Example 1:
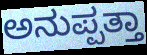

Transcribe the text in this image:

ಅನುಪ್ಪತ್ತಾ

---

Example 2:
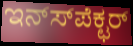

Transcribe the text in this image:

ಇನ್ಸ್‍ಪೆಕ್ಟರ್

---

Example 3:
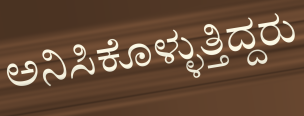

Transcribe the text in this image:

ಅನಿಸಿಕೊಳ್ಳುತ್ತಿದ್ದರು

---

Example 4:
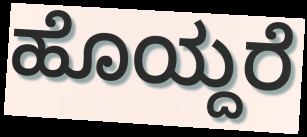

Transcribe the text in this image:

ಹೊಯ್ದರೆ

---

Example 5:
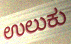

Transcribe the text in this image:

ಉಲುಕು